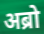
अब्रो